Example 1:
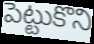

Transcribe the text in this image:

పెట్టుకొని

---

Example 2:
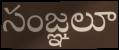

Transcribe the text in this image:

సంజ్ఞలూ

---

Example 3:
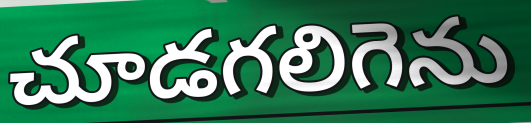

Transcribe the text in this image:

చూడగలిగెను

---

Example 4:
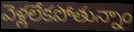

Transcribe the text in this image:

వెళ్లలేకపోతున్నాం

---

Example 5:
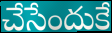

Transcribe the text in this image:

చేసేందుకే